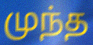
முந்த